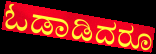
ಓಡಾಡಿದರೂ